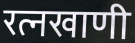
रत्नखाणी